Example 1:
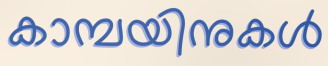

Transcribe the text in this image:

കാമ്പയിനുകൾ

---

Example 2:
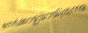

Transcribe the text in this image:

നേർക്കാഴ്ചയായിരുന്നു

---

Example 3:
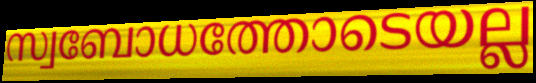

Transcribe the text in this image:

സ്വബോധത്തോടെയല്ല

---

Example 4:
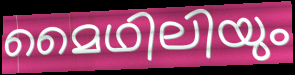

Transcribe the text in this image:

മൈഥിലിയും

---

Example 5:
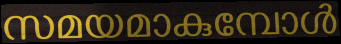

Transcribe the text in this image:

സമയമാകുമ്പോൾ